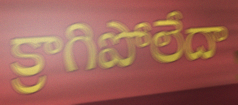
క్రాగిపోలేదా